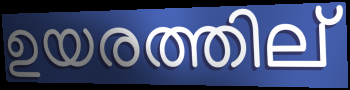
ഉയരത്തില്